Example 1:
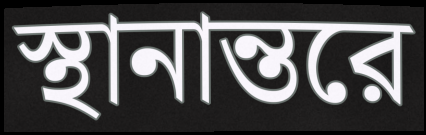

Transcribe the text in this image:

স্থানান্তরে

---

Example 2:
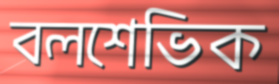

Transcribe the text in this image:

বলশেভিক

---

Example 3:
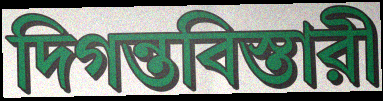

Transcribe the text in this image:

দিগন্তবিস্তারী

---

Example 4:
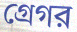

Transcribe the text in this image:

গ্রেগর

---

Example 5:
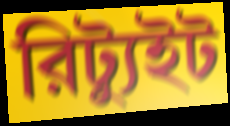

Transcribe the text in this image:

রিট্যুইট